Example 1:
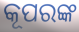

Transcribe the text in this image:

କୂପରଙ୍କ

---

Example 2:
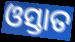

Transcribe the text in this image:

ଓସ୍ତାତ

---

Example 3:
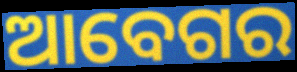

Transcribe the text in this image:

ଆବେଗର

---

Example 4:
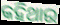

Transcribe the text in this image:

କହିଥାଉ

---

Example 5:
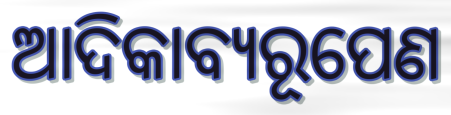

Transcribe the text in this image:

ଆଦିକାବ୍ୟରୂପେଣ